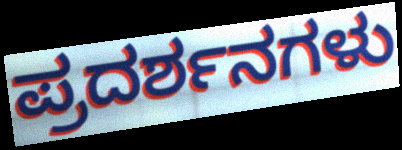
ಪ್ರದರ್ಶನಗಳು